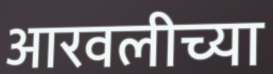
आरवलीच्या